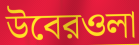
উবেরওলা